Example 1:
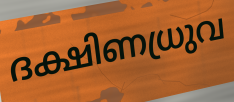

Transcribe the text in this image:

ദക്ഷിണധ്രുവ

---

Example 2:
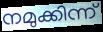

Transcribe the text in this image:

നമുക്കിന്ന്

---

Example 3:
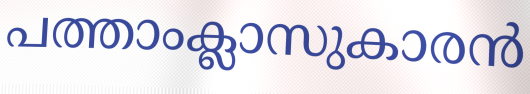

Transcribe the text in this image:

പത്താംക്ലാസുകാരൻ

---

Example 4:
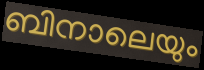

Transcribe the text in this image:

ബിനാലെയും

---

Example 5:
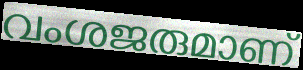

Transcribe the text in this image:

വംശജരുമാണ്